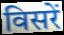
विसरें